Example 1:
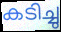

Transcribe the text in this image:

കടിച്ചു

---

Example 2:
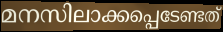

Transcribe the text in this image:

മനസിലാക്കപ്പെടേണ്ടത്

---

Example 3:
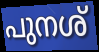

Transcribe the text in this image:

പുനശ്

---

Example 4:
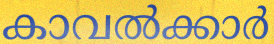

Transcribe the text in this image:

കാവൽക്കാർ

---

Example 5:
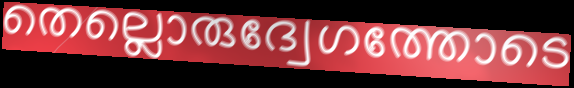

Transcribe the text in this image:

തെല്ലൊരുദ്വേഗത്തോടെ